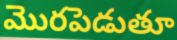
మొరపెడుతూ